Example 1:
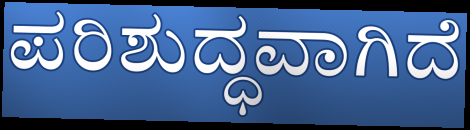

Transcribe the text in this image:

ಪರಿಶುದ್ಧವಾಗಿದೆ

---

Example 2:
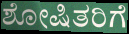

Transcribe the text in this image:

ಶೋಷಿತರಿಗೆ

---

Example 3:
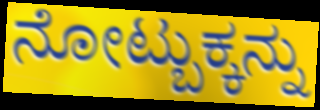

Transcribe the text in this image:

ನೋಟ್ಬುಕ್ಕನ್ನು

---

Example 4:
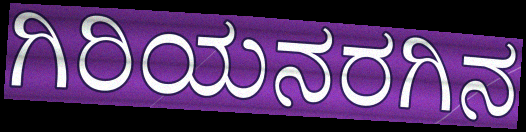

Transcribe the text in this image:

ಗಿರಿಯನರಗಿನ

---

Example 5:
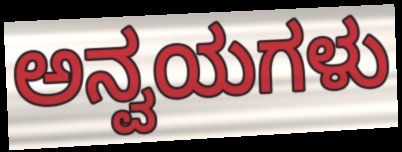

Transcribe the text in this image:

ಅನ್ವಯಗಳು